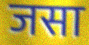
जसा